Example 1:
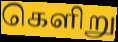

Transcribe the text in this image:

கெளிறு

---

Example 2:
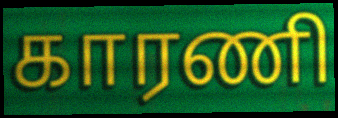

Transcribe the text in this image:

காரணி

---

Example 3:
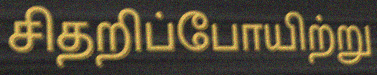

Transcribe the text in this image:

சிதறிப்போயிற்று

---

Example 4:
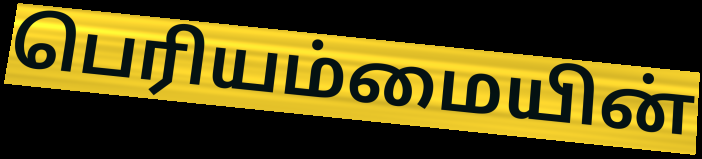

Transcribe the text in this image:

பெரியம்மையின்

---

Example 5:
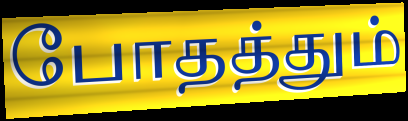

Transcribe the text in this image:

போதத்தும்